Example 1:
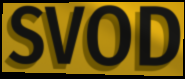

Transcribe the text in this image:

SVOD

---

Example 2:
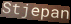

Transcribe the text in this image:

Stjepan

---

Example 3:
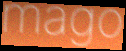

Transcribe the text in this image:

mago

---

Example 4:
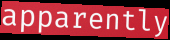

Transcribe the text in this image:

apparently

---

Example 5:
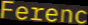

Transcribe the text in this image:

Ferenc